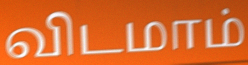
விடமாம்